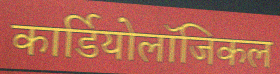
कार्डियोलॉजिकल